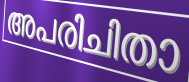
അപരിചിതാ